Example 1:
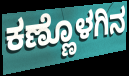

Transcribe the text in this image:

ಕಣ್ಣೊಳಗಿನ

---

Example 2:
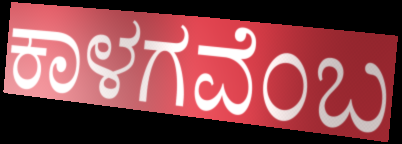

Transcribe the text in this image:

ಕಾಳಗವೆಂಬ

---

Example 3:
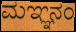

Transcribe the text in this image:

ಮಞ್ಞನಂ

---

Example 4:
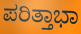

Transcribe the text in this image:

ಪರಿತ್ತಾಭಾ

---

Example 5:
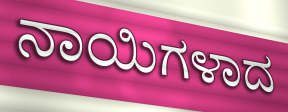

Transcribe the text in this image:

ನಾಯಿಗಳಾದ